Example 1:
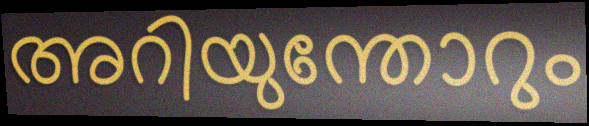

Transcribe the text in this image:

അറിയുന്തോറും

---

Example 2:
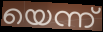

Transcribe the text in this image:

യെന്ന്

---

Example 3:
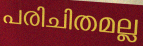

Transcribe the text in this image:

പരിചിതമല്ല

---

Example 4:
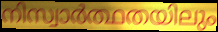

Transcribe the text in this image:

നിസ്വാർത്ഥതയിലും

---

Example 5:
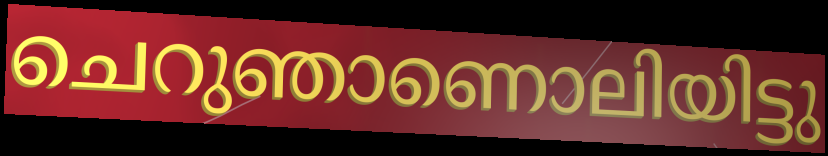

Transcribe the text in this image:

ചെറുഞാണൊലിയിട്ടു